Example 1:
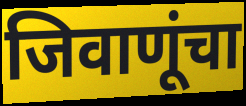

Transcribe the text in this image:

जिवाणूंचा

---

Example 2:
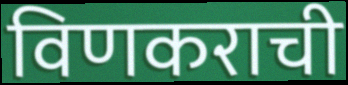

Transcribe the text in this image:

विणकराची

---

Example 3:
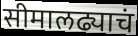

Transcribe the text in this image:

सीमालढ्याचं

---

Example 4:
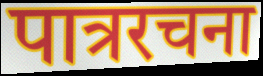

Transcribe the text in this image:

पात्ररचना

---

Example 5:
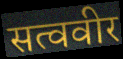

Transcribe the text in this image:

सत्ववीर